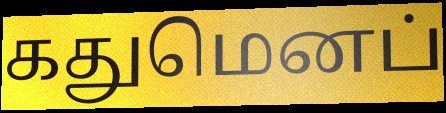
கதுமெனப்